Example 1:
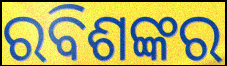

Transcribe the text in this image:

ରବିଶଙ୍କର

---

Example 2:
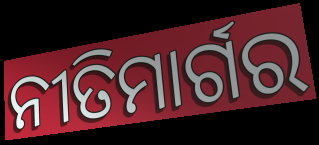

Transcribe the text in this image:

ନୀତିମାର୍ଗର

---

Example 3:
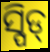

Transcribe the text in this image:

ସ୍ପିଡ୍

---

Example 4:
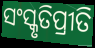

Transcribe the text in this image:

ସଂସ୍କୃତିପ୍ରୀତି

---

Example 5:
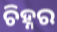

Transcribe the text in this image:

ଚିହ୍ନର